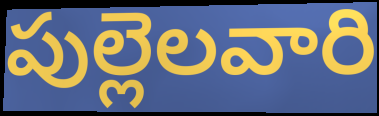
పుల్లెలవారి